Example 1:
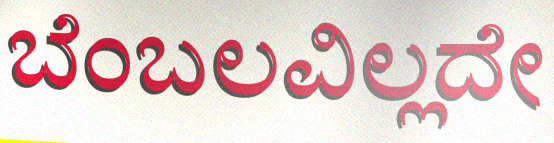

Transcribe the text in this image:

ಬೆಂಬಲವಿಲ್ಲದೇ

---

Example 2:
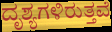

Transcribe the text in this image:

ದೃಶ್ಯಗಳಿರುತ್ತವೆ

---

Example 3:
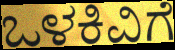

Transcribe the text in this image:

ಒಳಕಿವಿಗೆ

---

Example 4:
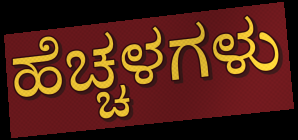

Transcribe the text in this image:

ಹೆಚ್ಚಳಗಳು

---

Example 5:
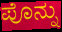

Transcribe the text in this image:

ಪೊನ್ನು